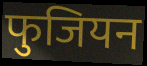
फुजियन